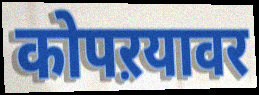
कोपऱयावर